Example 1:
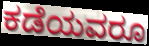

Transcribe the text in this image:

ಕಡೆಯವರೂ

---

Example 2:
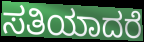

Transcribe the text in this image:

ಸತಿಯಾದರೆ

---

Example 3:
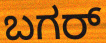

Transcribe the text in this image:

ಬಗರ್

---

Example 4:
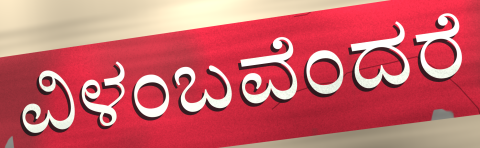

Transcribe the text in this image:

ವಿಳಂಬವೆಂದರೆ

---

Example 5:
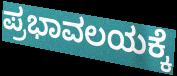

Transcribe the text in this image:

ಪ್ರಭಾವಲಯಕ್ಕೆ